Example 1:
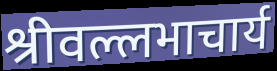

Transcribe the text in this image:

श्रीवल्लभाचार्य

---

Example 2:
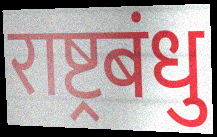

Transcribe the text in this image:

राष्ट्रबंधु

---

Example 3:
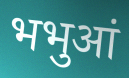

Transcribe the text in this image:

भभुआं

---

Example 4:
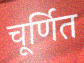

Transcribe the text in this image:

चूर्णित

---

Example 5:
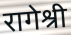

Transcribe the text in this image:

रागेश्री